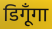
डिगूँगा